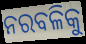
ନରବଳିକୁ